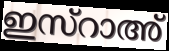
ഇസ്റാഅ്